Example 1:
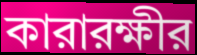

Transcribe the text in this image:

কারারক্ষীর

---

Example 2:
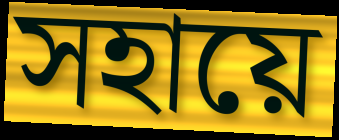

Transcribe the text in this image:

সহায়ে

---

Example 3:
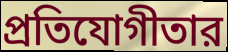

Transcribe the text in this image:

প্রতিযোগীতার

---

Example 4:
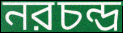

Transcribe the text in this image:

নরচন্দ্র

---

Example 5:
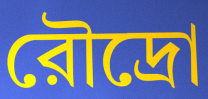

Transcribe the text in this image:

রৌদ্রো